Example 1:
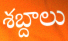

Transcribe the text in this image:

శబ్దాలు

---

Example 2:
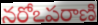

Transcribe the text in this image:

నరోఽపరాణి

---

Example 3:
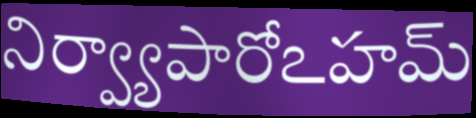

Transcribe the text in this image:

నిర్వ్యాపారోఽహమ్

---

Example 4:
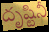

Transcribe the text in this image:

దృష్టినీ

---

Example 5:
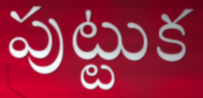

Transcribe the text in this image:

పుట్టుక